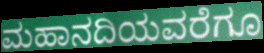
ಮಹಾನದಿಯವರೆಗೂ